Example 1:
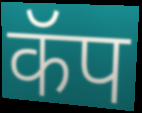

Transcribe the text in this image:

कॅप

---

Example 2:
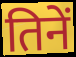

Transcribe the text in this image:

तिनें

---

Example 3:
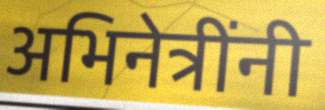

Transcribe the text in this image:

अभिनेत्रींनी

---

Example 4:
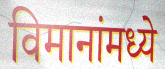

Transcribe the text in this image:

विमानांमध्ये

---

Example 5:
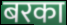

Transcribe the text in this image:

बरका